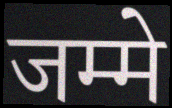
जम्मे